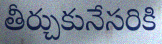
తీర్చుకునేసరికి